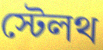
স্টেলথ